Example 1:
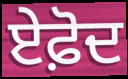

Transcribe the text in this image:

ਏਫ਼ੋਦ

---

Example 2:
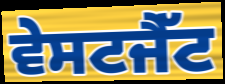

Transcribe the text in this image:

ਵੇਸਟਜੈੱਟ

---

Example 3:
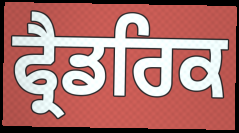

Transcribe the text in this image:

ਫ੍ਰੈਡਰਿਕ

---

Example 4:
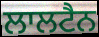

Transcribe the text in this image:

ਲਾਲਟੈਨ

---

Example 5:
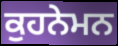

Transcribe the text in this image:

ਕੁਹਨੇਮਨ